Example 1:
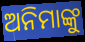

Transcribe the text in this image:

ଅନିମାଙ୍କୁ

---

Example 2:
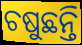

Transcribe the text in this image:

ଚଷୁଛନ୍ତି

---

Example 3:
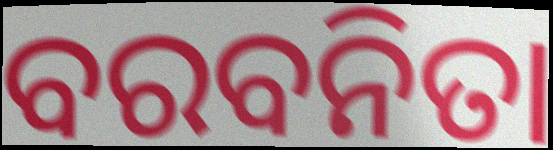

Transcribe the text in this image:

ବରବନିତା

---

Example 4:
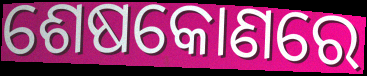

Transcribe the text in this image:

ଶେଷକୋଣରେ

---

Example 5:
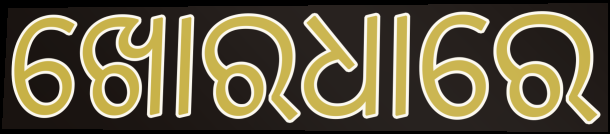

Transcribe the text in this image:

ଖୋରଧାରେ